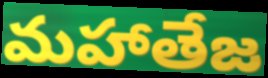
మహాతేజ